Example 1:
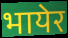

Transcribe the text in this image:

भायेर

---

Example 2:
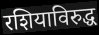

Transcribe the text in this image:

रशियाविरुद्ध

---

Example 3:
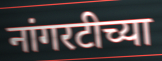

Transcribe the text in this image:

नांगरटीच्या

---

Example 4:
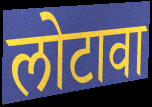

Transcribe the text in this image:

लोटावा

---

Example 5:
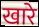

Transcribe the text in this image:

खारे